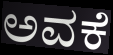
ಅವಕೆ